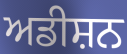
ਅਡੀਸ਼ਨ